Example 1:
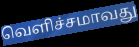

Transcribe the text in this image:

வெளிச்சமாவது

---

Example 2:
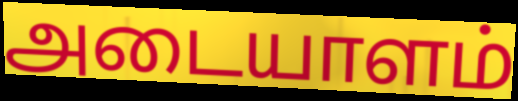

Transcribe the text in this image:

அடையாளம்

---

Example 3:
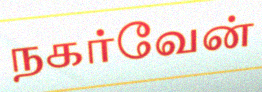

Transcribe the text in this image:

நகர்வேன்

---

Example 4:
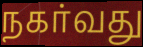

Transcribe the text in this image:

நகர்வது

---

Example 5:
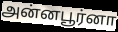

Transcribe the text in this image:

அன்னபூர்னா